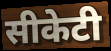
सीकेटी